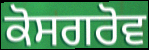
ਕੋਸਗਰੋਵ